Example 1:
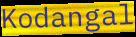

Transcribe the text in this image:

Kodangal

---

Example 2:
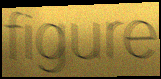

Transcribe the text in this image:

figure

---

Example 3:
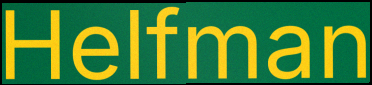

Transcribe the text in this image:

Helfman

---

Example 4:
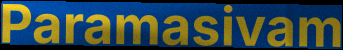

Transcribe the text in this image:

Paramasivam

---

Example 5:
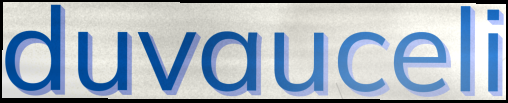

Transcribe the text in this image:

duvauceli